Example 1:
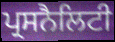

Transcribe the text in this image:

ਪ੍ਰਸਨੈਲਿਟੀ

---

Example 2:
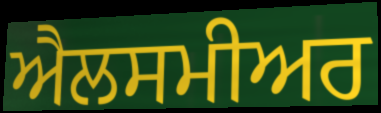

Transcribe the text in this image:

ਐਲਸਮੀਅਰ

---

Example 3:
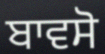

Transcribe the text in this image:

ਬਾਵਸੋ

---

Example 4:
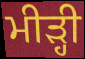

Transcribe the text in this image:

ਮੀੜ੍ਹੀ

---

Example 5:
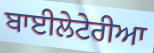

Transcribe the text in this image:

ਬਾਈਲੇਟੇਰੀਆ